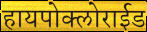
हायपोक्लोराईड